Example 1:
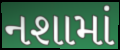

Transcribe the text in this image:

નશામાં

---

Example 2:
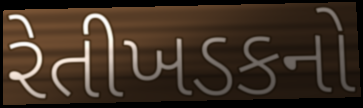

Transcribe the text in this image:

રેતીખડકનો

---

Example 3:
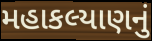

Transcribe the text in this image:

મહાકલ્યાણનું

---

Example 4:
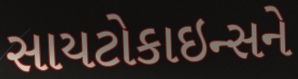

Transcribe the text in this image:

સાયટોકાઇન્સને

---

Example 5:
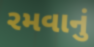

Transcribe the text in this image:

રમવાનું